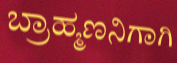
ಬ್ರಾಹ್ಮಣನಿಗಾಗಿ